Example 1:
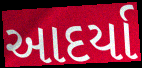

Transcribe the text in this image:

આદર્યા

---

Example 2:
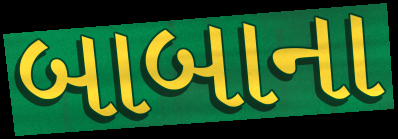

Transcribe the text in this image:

બાબાના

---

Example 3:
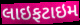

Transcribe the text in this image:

લાઇફટાઇમ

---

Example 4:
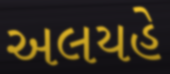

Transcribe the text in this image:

અલયહે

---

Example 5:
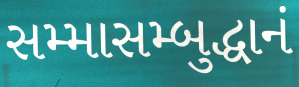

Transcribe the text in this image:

સમ્માસમ્બુદ્ધાનં